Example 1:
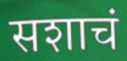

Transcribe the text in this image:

सशाचं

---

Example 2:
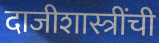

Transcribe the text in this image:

दाजीशास्त्रींची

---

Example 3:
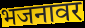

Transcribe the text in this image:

भजनावर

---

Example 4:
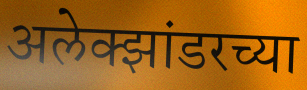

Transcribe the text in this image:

अलेक्झांडरच्या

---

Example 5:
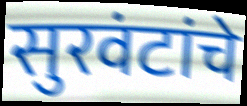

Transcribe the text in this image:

सुरवंटांचे